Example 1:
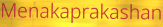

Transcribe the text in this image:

Menakaprakashan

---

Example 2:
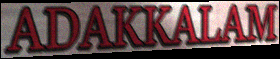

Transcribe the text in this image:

ADAKKALAM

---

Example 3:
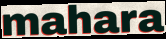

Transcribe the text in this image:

mahara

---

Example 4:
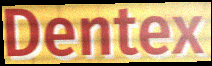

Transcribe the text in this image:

Dentex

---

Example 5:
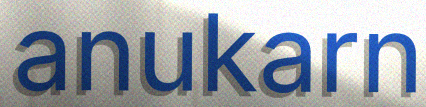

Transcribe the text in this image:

anukarn